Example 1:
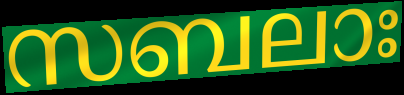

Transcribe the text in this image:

സബലാഃ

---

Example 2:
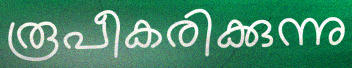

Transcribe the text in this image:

രൂപീകരിക്കുന്നു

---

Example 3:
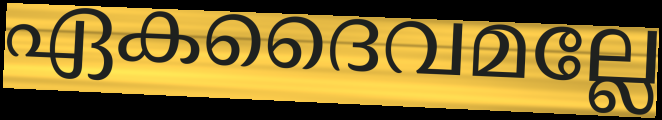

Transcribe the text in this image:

ഏകദൈവമല്ലേ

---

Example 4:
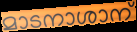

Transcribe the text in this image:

മാടനാശാന്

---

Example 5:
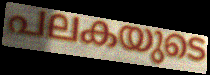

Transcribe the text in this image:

പലകയുടെ